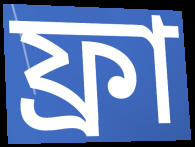
ফ্রা